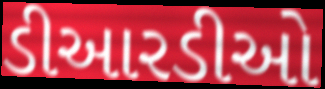
ડીઆરડીઓ